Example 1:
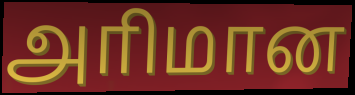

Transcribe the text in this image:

அரிமான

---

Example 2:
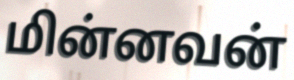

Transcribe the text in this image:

மின்னவன்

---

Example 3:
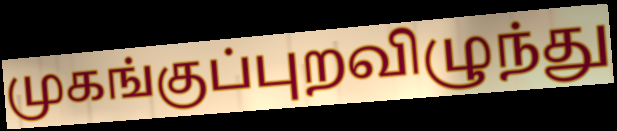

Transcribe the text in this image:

முகங்குப்புறவிழுந்து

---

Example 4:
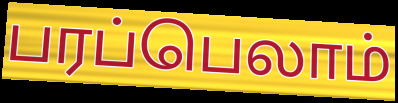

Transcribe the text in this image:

பரப்பெலாம்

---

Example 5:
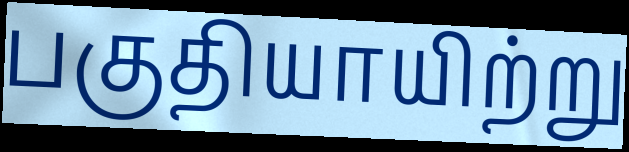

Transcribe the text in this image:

பகுதியாயிற்று